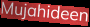
Mujahideen